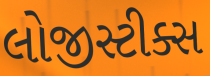
લોજીસ્ટીક્સ